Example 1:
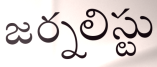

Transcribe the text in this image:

జర్నలిస్టు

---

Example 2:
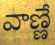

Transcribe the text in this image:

వాణ్ణే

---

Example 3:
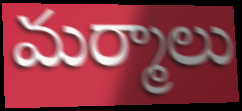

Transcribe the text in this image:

మర్మాలు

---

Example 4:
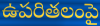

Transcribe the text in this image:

ఉపరితలంపై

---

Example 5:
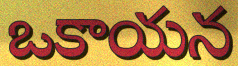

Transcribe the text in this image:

ఒకాయన